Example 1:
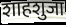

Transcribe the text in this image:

शाहशुजा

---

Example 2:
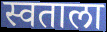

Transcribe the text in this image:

स्वताला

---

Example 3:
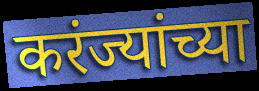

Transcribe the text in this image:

करंज्यांच्या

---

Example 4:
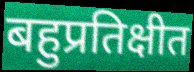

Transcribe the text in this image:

बहुप्रतिक्षीत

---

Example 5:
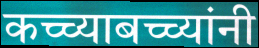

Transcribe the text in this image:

कच्च्याबच्च्यांनी